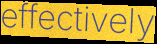
effectively